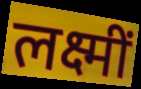
लक्ष्मीं